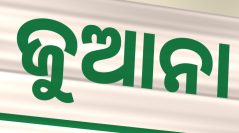
ଜୁଆନା